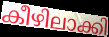
കീഴിലാക്കി